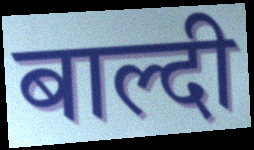
बाल्दी